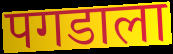
पगडाला